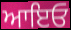
ਆਇਓ